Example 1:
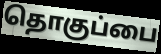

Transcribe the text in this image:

தொகுப்பை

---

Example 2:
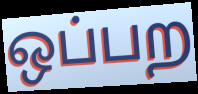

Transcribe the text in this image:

ஒப்பற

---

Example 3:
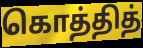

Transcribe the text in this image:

கொத்தித்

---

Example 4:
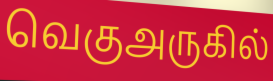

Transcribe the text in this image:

வெகுஅருகில்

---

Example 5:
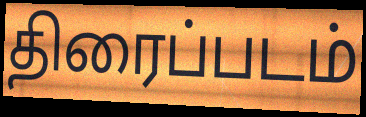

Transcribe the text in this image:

திரைப்படம்